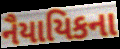
નૈયાયિકના